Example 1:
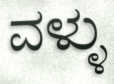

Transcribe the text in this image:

ವಳ್ಳು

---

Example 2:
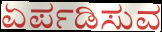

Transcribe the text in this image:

ಏರ್ಪಡಿಸುವ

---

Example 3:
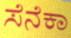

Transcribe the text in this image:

ಸೆನೆಕಾ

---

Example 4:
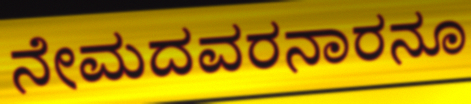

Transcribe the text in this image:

ನೇಮದವರನಾರನೂ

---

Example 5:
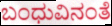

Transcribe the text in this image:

ಬಂಧುವಿನಂತೆ